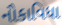
નૌકાવિધા